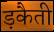
ड़कैती